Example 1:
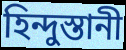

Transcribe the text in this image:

হিন্দুস্তানী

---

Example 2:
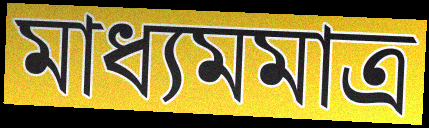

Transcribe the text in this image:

মাধ্যমমাত্র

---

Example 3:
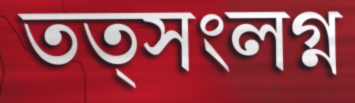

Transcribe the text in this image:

তত্সংলগ্ন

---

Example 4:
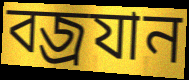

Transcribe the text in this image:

বজ্রযান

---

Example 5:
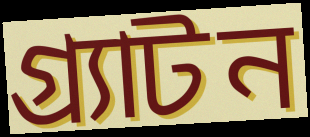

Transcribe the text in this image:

গ্র্যাটন